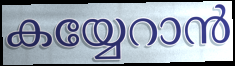
കയ്യേറാൻ